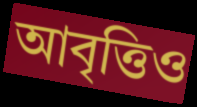
আবৃত্তিও